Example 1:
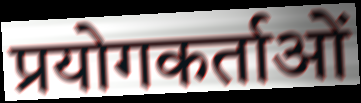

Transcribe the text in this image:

प्रयोगकर्ताओं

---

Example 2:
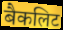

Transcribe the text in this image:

बैकलिट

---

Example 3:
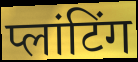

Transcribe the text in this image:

प्लांटिंग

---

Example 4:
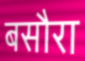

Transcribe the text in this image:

बसौरा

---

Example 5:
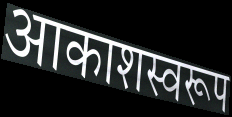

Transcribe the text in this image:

आकाशस्वरूप